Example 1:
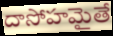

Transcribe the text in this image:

దాసోహమైతే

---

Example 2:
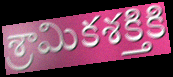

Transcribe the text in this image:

శ్రామికశక్తికి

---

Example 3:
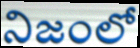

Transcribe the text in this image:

నిజంలో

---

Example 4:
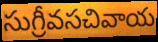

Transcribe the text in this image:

సుగ్రీవసచివాయ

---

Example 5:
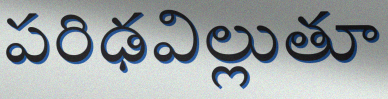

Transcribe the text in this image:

పరిఢవిల్లుతూ